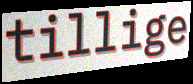
tillige